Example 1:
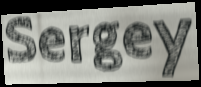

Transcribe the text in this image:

Sergey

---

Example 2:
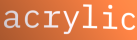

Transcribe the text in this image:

acrylic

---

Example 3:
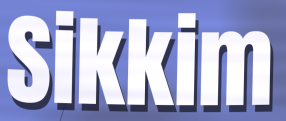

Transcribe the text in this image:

Sikkim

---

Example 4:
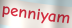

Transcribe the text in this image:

penniyam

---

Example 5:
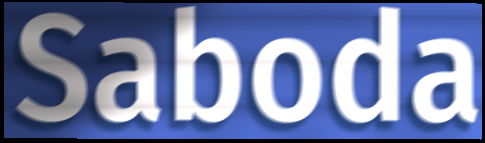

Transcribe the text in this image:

Saboda